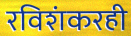
रविशंकरही